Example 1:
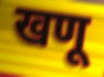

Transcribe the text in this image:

खणू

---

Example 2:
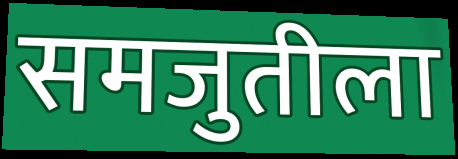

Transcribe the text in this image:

समजुतीला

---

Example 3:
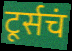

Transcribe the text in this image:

टूर्सचं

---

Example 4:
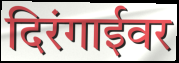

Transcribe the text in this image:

दिरंगाईवर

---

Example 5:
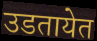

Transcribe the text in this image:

उडतायेत